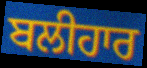
ਬਲੀਹਾਰ